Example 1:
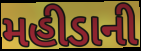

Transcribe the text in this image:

મહીડાની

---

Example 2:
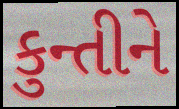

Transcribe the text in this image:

કુન્તીને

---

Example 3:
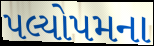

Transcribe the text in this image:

પલ્યોપમના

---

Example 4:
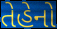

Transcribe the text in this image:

તેહેનો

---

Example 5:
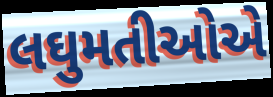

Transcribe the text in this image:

લઘુમતીઓએ